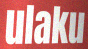
ulaku